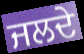
ਜਲਦੇ